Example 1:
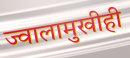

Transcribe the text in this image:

ज्वालामुखीही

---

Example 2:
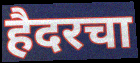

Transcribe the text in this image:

हैदरचा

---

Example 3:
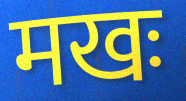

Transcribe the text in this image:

मखः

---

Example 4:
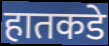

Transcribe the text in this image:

हातकडे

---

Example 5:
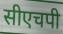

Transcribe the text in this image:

सीएचपी